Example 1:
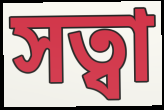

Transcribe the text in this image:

সত্বা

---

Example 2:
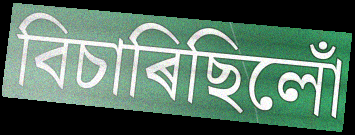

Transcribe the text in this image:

বিচাৰিছিলোঁ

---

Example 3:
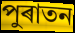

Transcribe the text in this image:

পুৰাতন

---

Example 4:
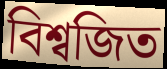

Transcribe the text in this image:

বিশ্বজিত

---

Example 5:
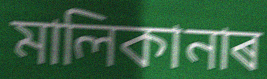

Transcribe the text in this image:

মালিকানাৰ